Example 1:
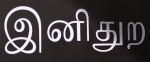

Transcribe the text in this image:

இனிதுற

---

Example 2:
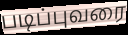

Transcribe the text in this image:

படிப்புவரை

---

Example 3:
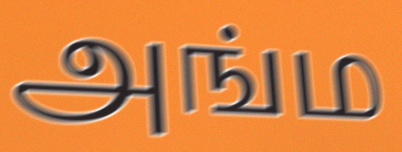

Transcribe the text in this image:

அங்ம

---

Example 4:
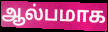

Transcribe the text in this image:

ஆல்பமாக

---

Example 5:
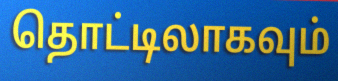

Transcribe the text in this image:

தொட்டிலாகவும்